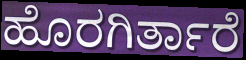
ಹೊರಗಿರ್ತಾರೆ